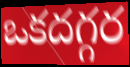
ఒకదగ్గర